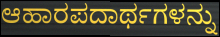
ಆಹಾರಪದಾರ್ಥಗಳನ್ನು